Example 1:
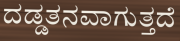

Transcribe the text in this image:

ದಡ್ಡತನವಾಗುತ್ತದೆ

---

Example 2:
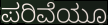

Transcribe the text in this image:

ಪರಿವೆಯೂ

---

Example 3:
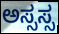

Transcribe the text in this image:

ಅಸ್ಸಸ್ಸ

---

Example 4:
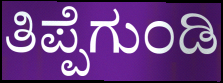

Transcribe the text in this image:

ತಿಪ್ಪೆಗುಂಡಿ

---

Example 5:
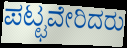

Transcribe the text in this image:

ಪಟ್ಟವೇರಿದರು